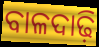
ବାଳଦାଢ଼ି